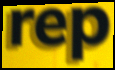
rep